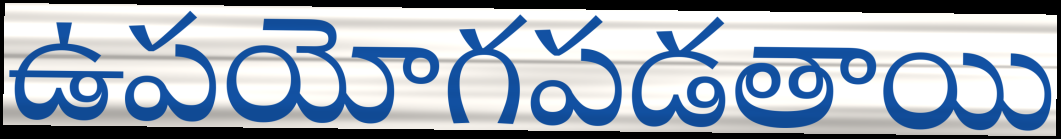
ఉపయోగపడతాయి